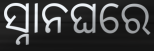
ସ୍ନାନଘରେ